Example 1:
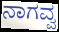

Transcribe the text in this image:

ನಾಗವ್ವ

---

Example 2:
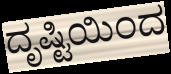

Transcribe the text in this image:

ದೃಷ್ಟಿಯಿಂದ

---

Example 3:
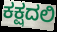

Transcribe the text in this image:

ಕಕ್ಷದಲಿ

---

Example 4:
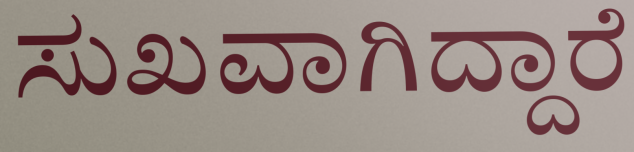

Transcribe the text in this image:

ಸುಖವಾಗಿದ್ದಾರೆ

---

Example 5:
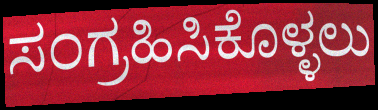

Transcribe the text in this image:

ಸಂಗ್ರಹಿಸಿಕೊಳ್ಳಲು